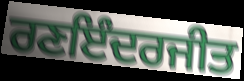
ਰਣਇੰਦਰਜੀਤ